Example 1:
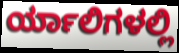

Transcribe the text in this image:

ರ್ಯಾಲಿಗಳಲ್ಲಿ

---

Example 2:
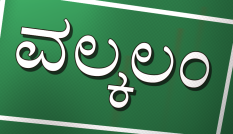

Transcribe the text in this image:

ವಲ್ಕಲಂ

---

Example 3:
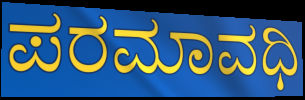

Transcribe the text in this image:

ಪರಮಾವಧಿ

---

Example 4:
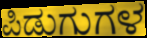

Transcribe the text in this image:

ಪಿಡುಗುಗಳ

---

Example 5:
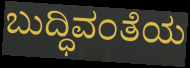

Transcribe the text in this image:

ಬುದ್ಧಿವಂತೆಯ